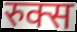
रुक्स